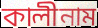
কালীনাম